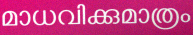
മാധവിക്കുമാത്രം